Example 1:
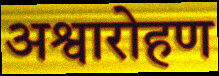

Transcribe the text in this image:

अश्वारोहण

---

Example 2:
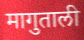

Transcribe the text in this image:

मागुताली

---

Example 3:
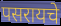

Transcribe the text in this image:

पसरायचे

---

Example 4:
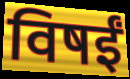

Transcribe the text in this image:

विषईं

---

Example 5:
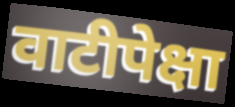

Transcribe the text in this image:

वाटीपेक्षा